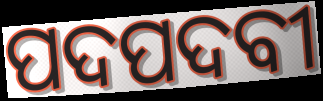
ପଦପଦବୀ